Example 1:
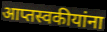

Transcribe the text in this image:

आप्तस्वकीयांना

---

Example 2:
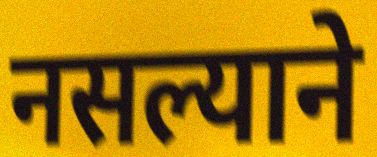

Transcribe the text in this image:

नसल्याने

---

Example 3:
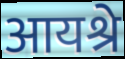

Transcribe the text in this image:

आयश्रे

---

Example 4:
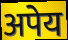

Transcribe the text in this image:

अपेय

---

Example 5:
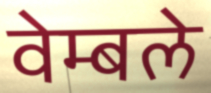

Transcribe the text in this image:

वेम्बले